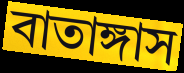
বাতাঙ্গাস